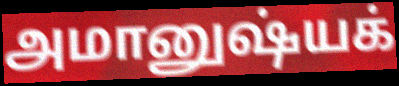
அமானுஷ்யக்